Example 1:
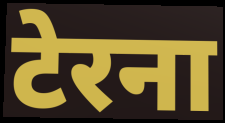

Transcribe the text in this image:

टेरना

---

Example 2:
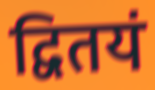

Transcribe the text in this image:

द्वितयं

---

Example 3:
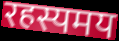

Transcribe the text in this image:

रहस्यमय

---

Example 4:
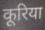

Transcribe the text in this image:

कूरिया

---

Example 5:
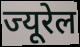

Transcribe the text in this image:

ज्यूरेल